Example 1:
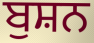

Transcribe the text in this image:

ਬੁਸ਼ਨ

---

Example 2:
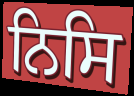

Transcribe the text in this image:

ਨਿਸਿ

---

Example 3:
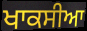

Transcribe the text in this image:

ਖਾਕਸੀਆ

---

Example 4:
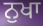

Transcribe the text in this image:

ਨੁਖਾ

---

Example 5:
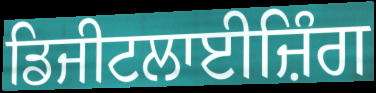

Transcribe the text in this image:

ਡਿਜੀਟਲਾਈਜ਼ਿੰਗ